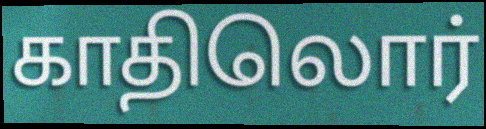
காதிலொர்